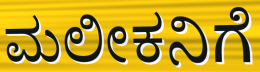
ಮಲೀಕನಿಗೆ